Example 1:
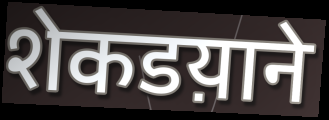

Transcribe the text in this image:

शेकडय़ाने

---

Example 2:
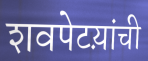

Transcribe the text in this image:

शवपेटय़ांची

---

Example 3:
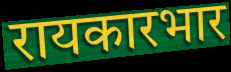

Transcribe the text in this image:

रायकारभार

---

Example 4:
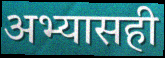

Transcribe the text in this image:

अभ्यासही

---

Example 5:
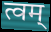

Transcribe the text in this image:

त्वम्